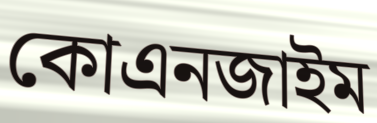
কোএনজাইম